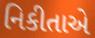
નિકીતાએ